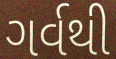
ગર્વથી